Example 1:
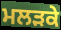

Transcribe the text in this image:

ਮਲੜਕੇ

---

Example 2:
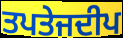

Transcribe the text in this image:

ਤਪਤੇਜਦੀਪ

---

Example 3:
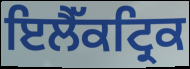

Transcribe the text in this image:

ਇਲੈੱਕਟ੍ਰਿਕ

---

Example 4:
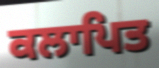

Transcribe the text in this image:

ਕਲਾਪਿਤ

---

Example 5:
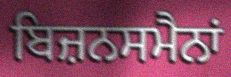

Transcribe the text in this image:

ਬਿਜ਼ਨਸਮੈਨਾਂ